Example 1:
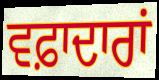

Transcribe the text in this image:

ਵਫ਼ਾਦਾਰਾਂ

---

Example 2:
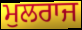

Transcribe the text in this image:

ਮੁਲਰਾਜ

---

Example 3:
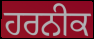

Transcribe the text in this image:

ਹਰਨੀਕ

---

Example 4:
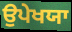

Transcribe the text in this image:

ਉਪੇਖਯਾ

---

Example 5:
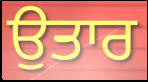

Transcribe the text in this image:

ਉਤਾਰ